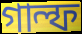
গাল্ফ